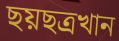
ছয়ছত্রখান